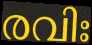
രവിഃ